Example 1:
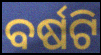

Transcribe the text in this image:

ବର୍ଷଟି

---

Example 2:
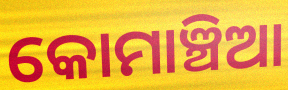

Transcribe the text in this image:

କୋମାଞ୍ଚିଆ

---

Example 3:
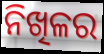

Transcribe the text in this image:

ନିଖିଳର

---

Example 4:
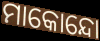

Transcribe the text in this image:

ମାକୋନ୍ଦୋ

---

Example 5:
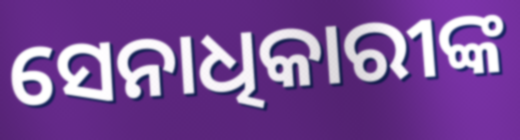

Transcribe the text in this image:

ସେନାଧିକାରୀଙ୍କ